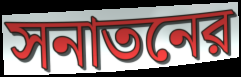
সনাতনের